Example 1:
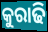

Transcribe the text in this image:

କୁରାଢି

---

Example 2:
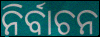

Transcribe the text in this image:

ନିର୍ବାଚନ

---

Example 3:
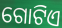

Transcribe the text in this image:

ଗୋଟିଏ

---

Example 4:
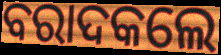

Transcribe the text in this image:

ବରାଦକଲେ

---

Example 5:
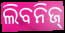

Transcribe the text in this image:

ଲିବନିଜ୍